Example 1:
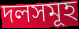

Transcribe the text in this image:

দলসমূহ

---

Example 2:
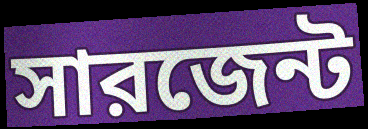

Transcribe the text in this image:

সারজেন্ট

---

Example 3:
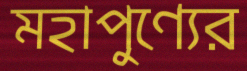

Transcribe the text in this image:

মহাপুণ্যের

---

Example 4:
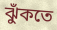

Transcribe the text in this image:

ঝুঁকতে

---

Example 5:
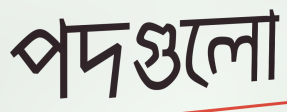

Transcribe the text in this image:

পদগুলো